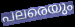
പലരെയും